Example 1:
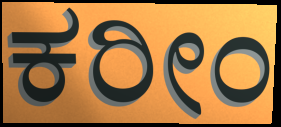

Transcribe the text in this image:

ಕರೀಂ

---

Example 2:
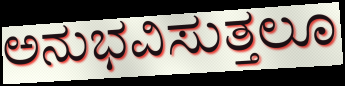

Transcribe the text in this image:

ಅನುಭವಿಸುತ್ತಲೂ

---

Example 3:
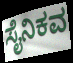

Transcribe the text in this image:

ಸೈನಿಕವ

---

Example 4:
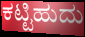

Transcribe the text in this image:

ಕಟ್ಟಿಹುದು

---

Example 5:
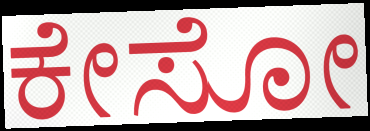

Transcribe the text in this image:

ಕೇಸೋ